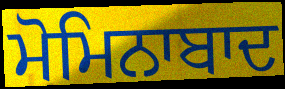
ਮੋਮਿਨਾਬਾਦ